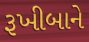
રૂખીબાને